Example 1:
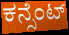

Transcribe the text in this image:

ಕನ್ಸೆಂಟ್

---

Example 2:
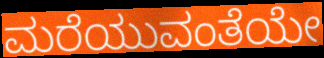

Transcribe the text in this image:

ಮರೆಯುವಂತೆಯೇ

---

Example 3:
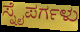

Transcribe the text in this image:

ಸ್ನೈಪರ್ಗಳು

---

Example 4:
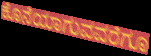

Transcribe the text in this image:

ಕೊನೆಯಾಗುವವರೆಗೂ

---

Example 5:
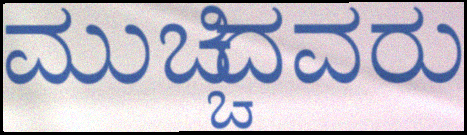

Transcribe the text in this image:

ಮುಚ್ಚಿದವರು